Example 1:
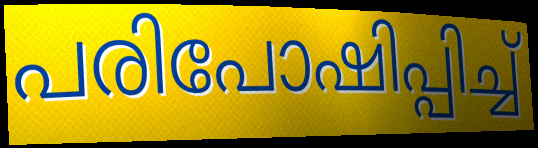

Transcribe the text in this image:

പരിപോഷിപ്പിച്ച്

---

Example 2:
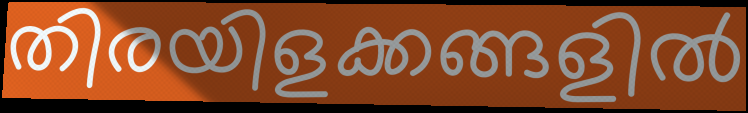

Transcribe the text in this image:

തിരയിളക്കങ്ങളിൽ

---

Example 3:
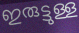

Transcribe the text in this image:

ഇരുട്ടുള്ള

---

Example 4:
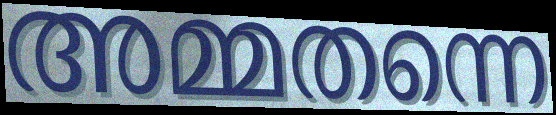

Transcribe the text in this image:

അമ്മതന്നെ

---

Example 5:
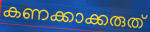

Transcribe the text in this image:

കണക്കാക്കരുത്